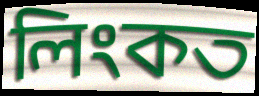
লিংকত